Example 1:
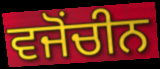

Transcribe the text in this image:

ਵਜੋਂਚੀਨ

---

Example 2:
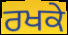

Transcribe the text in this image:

ਰਖਕੇ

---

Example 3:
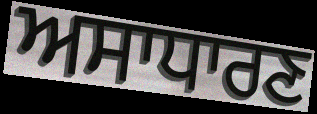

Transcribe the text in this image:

ਅਸਾਧਾਰਣ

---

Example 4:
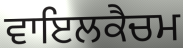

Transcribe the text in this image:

ਵਾਇਲਕੈਚਮ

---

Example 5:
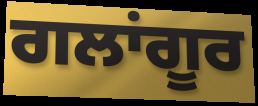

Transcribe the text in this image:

ਗਲਾਂਗੂਰ